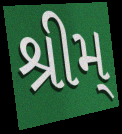
શ્રીમ્